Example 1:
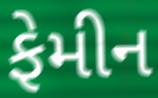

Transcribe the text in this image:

ફેમીન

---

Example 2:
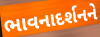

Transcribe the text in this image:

ભાવનાદર્શનને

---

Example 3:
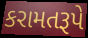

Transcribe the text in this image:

કરામતરૂપે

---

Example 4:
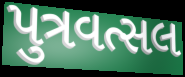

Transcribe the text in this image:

પુત્રવત્સલ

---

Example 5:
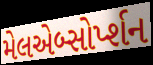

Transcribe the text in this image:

મેલએબ્સોર્પ્શન